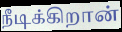
நீடிக்கிறான்